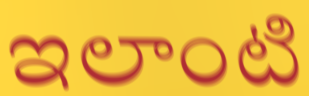
ఇలాంటి